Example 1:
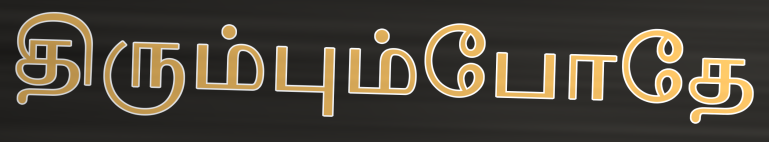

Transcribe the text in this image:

திரும்பும்போதே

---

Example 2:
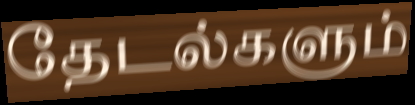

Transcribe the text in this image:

தேடல்களும்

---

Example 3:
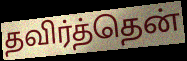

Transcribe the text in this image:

தவிர்த்தென்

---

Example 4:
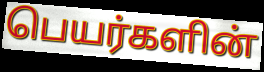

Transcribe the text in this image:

பெயர்களின்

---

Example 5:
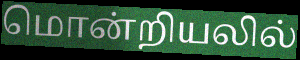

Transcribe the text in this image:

மொன்றியலில்